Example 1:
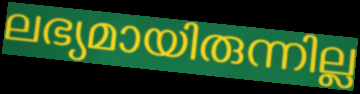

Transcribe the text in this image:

ലഭ്യമായിരുന്നില്ല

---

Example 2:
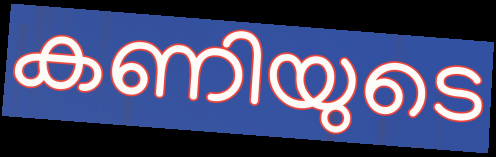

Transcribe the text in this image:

കണിയുടെ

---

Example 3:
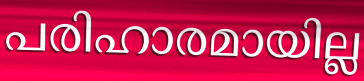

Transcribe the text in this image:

പരിഹാരമായില്ല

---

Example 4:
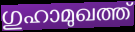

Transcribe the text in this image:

ഗുഹാമുഖത്ത്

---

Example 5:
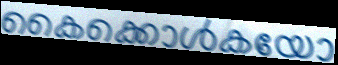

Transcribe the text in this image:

കൈക്കൊൾകയോ